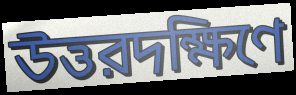
উত্তরদক্ষিণে